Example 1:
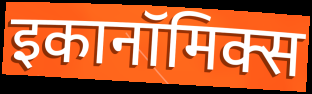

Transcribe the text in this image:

इकानॉमिक्स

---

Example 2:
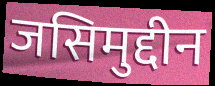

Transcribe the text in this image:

जसिमुद्दीन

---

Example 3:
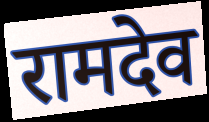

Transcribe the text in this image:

रामदेव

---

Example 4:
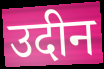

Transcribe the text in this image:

उदीन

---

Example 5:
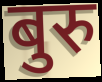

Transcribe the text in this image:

बुरु